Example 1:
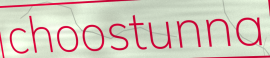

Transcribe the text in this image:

choostunna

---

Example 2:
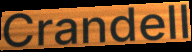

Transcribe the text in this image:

Crandell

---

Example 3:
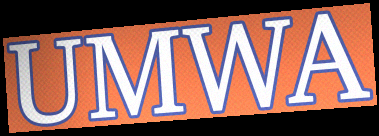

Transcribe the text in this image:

UMWA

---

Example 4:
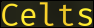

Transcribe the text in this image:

Celts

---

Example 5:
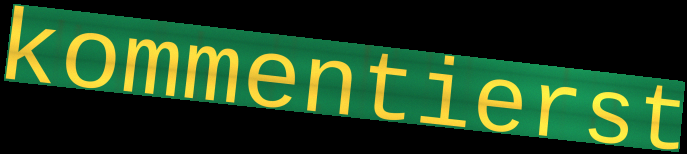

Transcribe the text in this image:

kommentierst